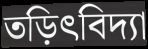
তড়িৎবিদ্যা